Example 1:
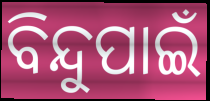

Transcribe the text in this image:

ବିନ୍ଦୁପାଇଁ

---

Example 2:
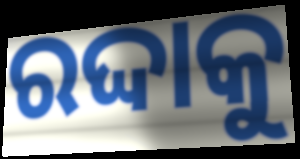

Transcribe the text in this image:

ରଦ୍ଦାକୁ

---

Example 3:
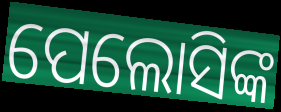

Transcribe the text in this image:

ପେଲୋସିଙ୍କ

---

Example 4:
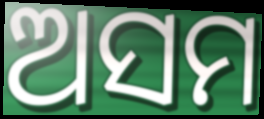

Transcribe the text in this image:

ଅସମ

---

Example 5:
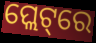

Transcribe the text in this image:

ପ୍ଲେଟ୍‌ରେ